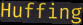
Huffing